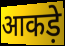
आकड़े